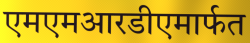
एमएमआरडीएमार्फत